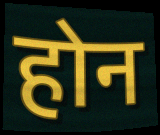
होन